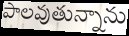
పాలవుతున్నాను